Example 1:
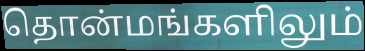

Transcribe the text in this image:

தொன்மங்களிலும்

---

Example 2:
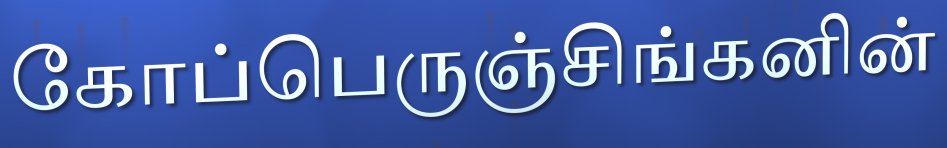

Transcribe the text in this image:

கோப்பெருஞ்சிங்கனின்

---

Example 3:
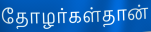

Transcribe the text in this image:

தோழர்கள்தான்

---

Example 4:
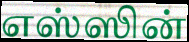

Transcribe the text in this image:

எஸ்ஸின்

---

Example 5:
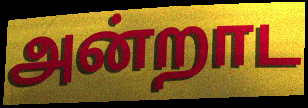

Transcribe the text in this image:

அன்றாட